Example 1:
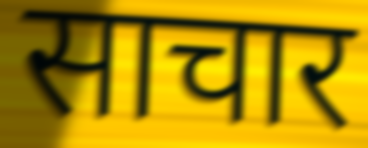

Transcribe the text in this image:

साचार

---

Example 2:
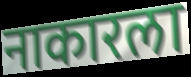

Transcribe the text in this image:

नाकारला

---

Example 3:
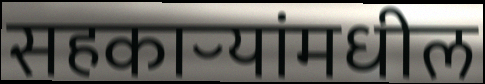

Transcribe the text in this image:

सहकाऱ्यांमधील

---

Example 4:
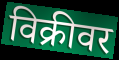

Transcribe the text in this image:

विक्रीवर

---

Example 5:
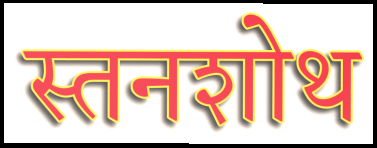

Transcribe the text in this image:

स्तनशोथ